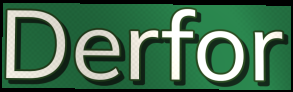
Derfor